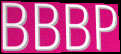
BBBP